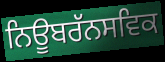
ਨਿਊਬਰੱਨਸਵਿਕ